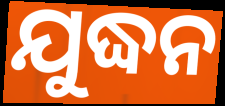
ଯୁଦ୍ଧନ